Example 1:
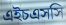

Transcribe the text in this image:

এইচএসসি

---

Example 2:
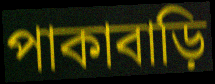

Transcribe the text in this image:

পাকাবাড়ি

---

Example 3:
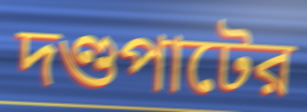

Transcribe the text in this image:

দণ্ডপাটের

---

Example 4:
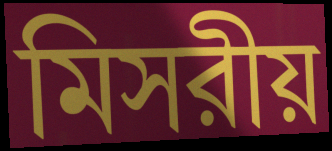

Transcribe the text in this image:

মিসরীয়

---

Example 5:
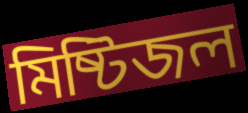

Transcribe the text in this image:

মিষ্টিজল